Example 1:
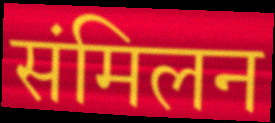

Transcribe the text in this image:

संमिलन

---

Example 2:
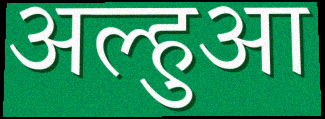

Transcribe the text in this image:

अल्हुआ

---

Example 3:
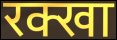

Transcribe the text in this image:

रक्खा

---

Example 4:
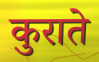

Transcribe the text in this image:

कुराते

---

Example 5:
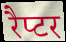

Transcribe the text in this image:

रैप्टर